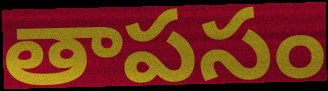
తాపసం